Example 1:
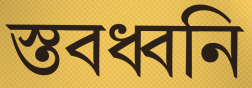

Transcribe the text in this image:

স্তবধ্বনি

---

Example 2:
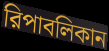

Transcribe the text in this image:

রিপাবলিকান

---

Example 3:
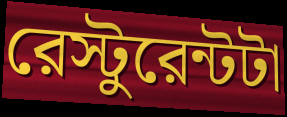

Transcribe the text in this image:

রেস্টুরেন্টটা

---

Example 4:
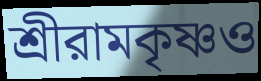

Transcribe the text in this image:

শ্রীরামকৃষ্ণও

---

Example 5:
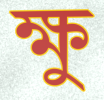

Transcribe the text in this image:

ক্ষু